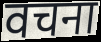
वचना